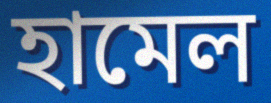
হামেল